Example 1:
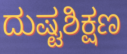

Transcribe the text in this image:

ದುಷ್ಟಶಿಕ್ಷಣ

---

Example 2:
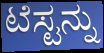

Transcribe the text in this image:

ಟೆಸ್ಟನ್ನು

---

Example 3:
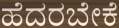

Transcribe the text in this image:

ಹೆದರಬೇಕೆ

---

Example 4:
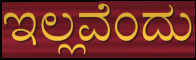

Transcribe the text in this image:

ಇಲ್ಲವೆಂದು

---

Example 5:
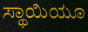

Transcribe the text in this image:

ಸ್ಥಾಯಿಯೂ